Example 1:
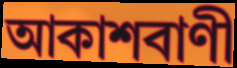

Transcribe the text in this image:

আকাশবাণী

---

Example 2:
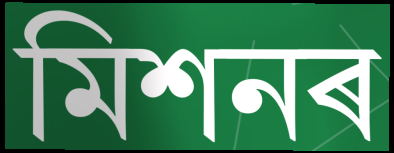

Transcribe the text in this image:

মিশনৰ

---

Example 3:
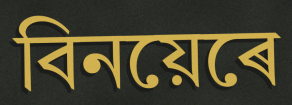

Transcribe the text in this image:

বিনয়েৰে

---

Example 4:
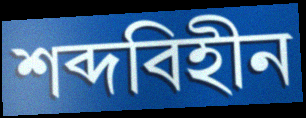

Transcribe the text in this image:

শব্দবিহীন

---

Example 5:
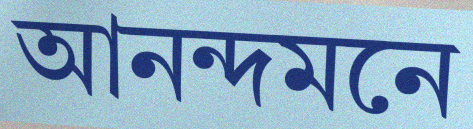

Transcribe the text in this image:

আনন্দমনে